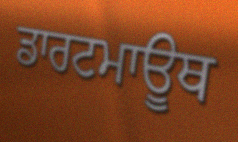
ਡਾਰਟਮਾਊਥ